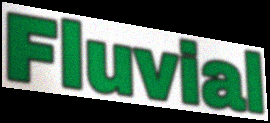
Fluvial